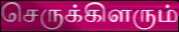
செருக்கிளரும்